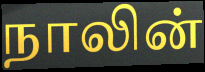
நாலின்